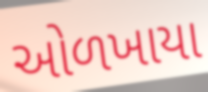
ઓળખાયા